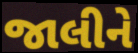
જાલીને